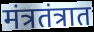
मंत्रतंत्रात